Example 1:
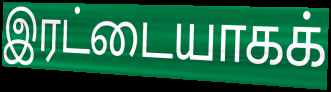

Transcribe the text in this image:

இரட்டையாகக்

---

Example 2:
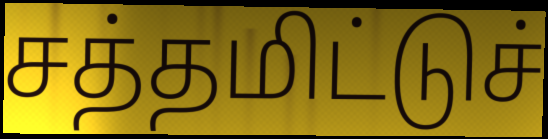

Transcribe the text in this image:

சத்தமிட்டுச்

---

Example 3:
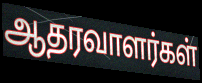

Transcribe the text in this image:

ஆதரவாளர்கள்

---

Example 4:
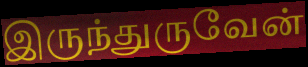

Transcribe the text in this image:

இருந்துருவேன்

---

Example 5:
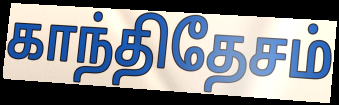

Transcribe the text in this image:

காந்திதேசம்